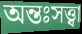
অন্তঃসত্ত্বা